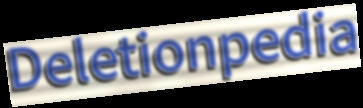
Deletionpedia